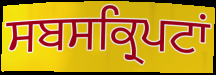
ਸਬਸਕ੍ਰਿਪਟਾਂ